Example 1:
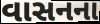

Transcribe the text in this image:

વાસનના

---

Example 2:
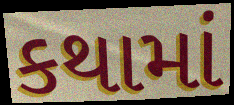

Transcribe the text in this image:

કથામાં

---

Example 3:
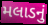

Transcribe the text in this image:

મલાડનું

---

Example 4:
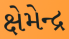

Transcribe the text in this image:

ક્ષેમેન્દ્ર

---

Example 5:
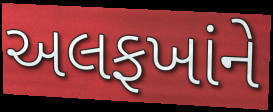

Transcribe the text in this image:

અલફખાંને